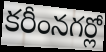
కరీంనగర్లో